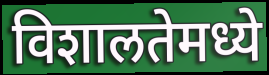
विशालतेमध्ये